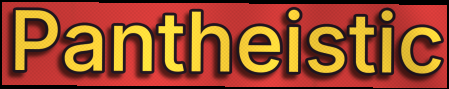
Pantheistic